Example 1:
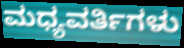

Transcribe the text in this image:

ಮಧ್ಯವರ್ತಿಗಳು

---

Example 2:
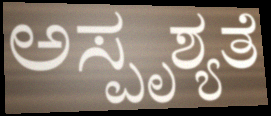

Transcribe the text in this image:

ಅಸ್ಪೃಶ್ಯತೆ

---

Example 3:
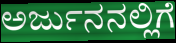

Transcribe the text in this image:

ಅರ್ಜುನನಲ್ಲಿಗೆ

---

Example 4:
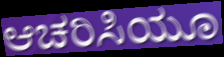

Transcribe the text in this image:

ಆಚರಿಸಿಯೂ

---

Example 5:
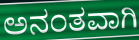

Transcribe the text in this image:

ಅನಂತವಾಗಿ